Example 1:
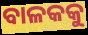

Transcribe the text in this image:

ବାଳକକୁ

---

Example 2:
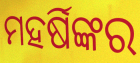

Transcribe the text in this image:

ମହର୍ଷିଙ୍କର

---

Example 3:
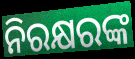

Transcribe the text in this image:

ନିରକ୍ଷରଙ୍କ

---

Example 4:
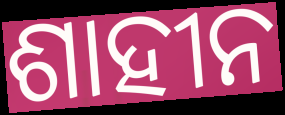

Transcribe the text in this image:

ଶାହୀନ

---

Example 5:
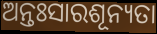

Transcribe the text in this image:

ଅନ୍ତଃସାରଶୂନ୍ୟତା